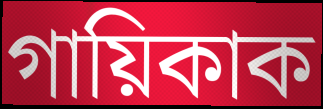
গায়িকাক